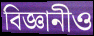
বিজ্ঞানীও